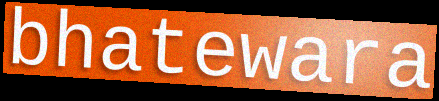
bhatewara